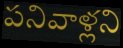
పనివాళ్లని